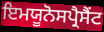
ਇਮਯੂਨੋਸਪ੍ਰੈਸੈਂਟ